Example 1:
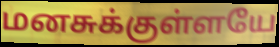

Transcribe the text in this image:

மனசுக்குள்ளயே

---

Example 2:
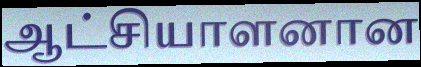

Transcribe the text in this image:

ஆட்சியாளனான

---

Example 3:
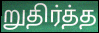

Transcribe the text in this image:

றுதிர்த்த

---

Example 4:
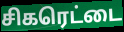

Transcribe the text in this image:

சிகரெட்டை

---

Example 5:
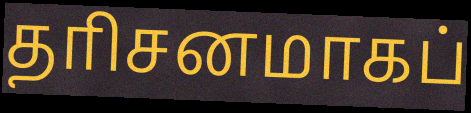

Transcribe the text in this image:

தரிசனமாகப்